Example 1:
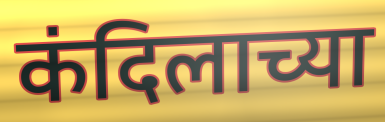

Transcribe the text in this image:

कंदिलाच्या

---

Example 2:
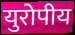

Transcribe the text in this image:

युरोपीय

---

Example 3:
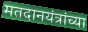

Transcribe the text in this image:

मतदानयंत्रांच्या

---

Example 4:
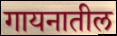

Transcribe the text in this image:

गायनातील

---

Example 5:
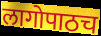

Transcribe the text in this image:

लागोपाठच